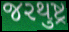
જરથુષ્ટ્ર